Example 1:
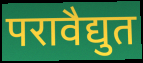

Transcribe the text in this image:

परावैद्युत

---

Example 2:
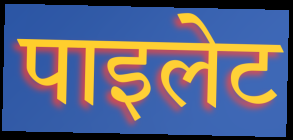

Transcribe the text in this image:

पाइलेट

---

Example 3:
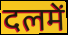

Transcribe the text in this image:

दलमें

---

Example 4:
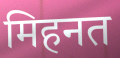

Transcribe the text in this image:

मिहनत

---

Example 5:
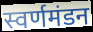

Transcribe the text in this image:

स्वर्णमंडन